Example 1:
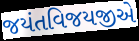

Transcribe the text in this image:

જયંતવિજયજીએ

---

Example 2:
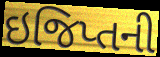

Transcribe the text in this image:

ઇજિપ્તની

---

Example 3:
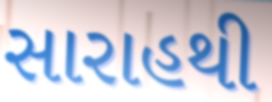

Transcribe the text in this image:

સારાહથી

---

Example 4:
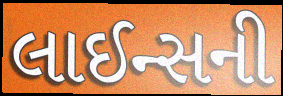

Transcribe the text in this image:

લાઈન્સની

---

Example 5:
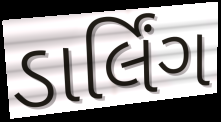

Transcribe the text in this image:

ડાર્લિંગ